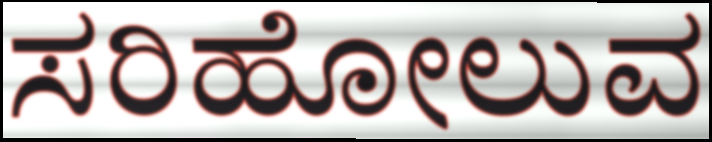
ಸರಿಹೋಲುವ